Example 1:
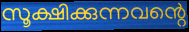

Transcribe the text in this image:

സൂക്ഷിക്കുന്നവന്റെ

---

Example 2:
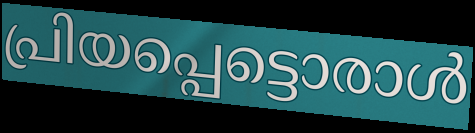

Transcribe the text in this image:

പ്രിയപ്പെട്ടൊരാൾ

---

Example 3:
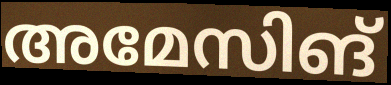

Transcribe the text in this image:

അമേസിങ്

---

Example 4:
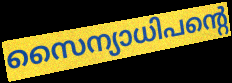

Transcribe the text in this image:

സൈന്യാധിപന്റെ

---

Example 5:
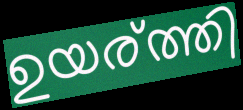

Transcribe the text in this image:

ഉയര്ത്തി